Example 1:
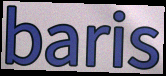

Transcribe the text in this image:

baris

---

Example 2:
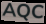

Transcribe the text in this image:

AQC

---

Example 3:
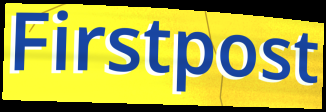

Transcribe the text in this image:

Firstpost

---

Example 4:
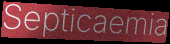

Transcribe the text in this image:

Septicaemia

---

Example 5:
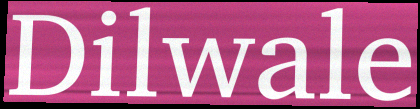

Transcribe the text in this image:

Dilwale